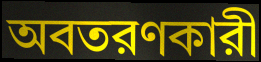
অবতরণকারী